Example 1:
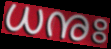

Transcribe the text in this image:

ധനുഃ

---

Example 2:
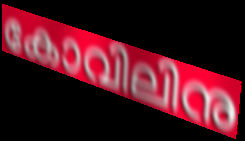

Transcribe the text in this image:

കോവിലിനു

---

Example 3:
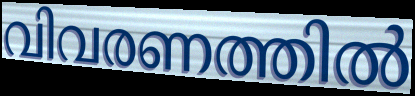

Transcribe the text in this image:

വിവരണത്തിൽ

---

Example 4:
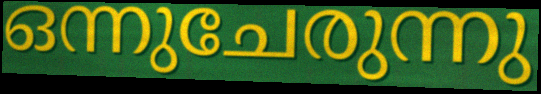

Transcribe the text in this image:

ഒന്നുചേരുന്നു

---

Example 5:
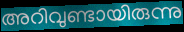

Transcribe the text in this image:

അറിവുണ്ടായിരുന്നു